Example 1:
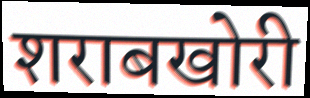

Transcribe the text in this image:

शराबखोरी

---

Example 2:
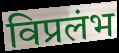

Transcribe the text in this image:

विप्रलंभ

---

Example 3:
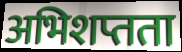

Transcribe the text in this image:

अभिशप्तता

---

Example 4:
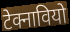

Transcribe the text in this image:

टेक्नावियो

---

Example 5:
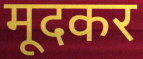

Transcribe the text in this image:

मूदकर